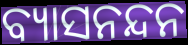
ବ୍ୟାସନନ୍ଦନ